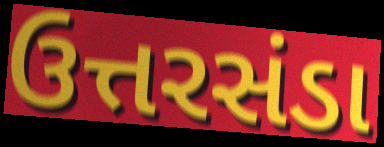
ઉત્તરસંડા